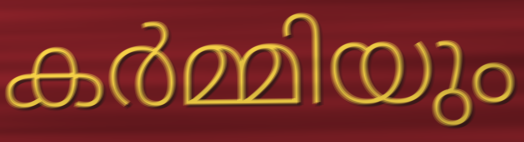
കർമ്മിയും